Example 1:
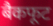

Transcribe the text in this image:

बैकफूट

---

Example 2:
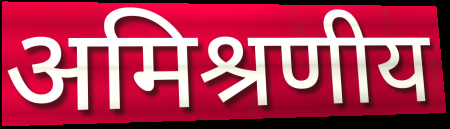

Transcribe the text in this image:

अमिश्रणीय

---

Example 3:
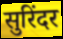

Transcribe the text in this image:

सुरिंदर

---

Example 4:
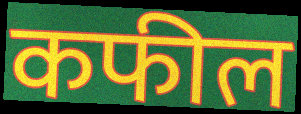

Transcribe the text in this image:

कफील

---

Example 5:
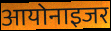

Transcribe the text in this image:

आयोनाइजर